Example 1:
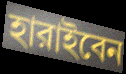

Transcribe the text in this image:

হারাইবেন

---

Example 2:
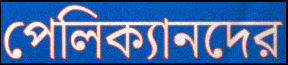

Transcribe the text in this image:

পেলিক্যানদের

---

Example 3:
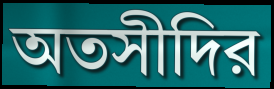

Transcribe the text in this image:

অতসীদির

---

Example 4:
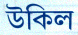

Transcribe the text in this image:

উকিল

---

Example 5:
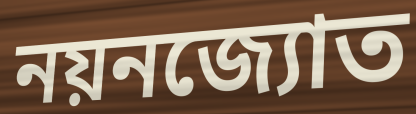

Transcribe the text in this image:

নয়নজ্যোত